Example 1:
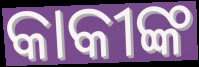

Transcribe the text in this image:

କାକୀଙ୍କ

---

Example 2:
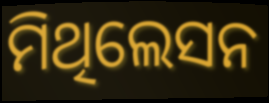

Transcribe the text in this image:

ମିଥିଲେସନ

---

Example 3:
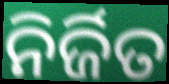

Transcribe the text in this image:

ନିର୍ଜିତ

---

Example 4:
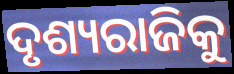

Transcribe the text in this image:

ଦୃଶ୍ୟରାଜିକୁ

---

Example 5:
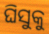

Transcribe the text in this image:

ଘିସୁକୁ